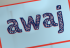
awaj